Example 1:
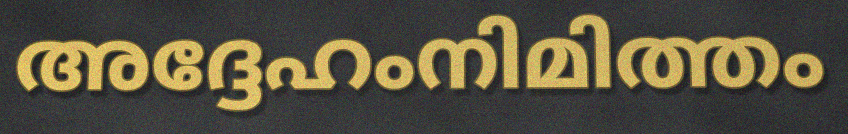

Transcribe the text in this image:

അദ്ദേഹംനിമിത്തം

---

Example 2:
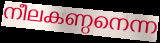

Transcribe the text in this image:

നീലകണ്ഠനെന്ന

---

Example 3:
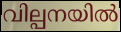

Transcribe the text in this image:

വില്പനയിൽ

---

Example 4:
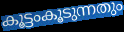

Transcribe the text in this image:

കൂട്ടംകൂടുന്നതും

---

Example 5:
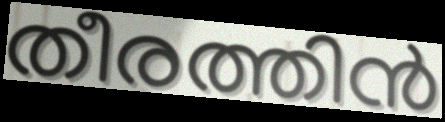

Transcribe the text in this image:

തീരത്തിൻ